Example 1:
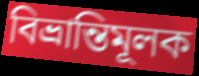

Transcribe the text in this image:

বিভ্রান্তিমূলক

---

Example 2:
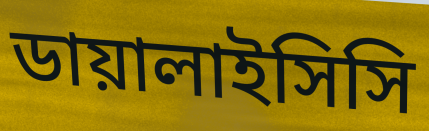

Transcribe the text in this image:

ডায়ালাইসিসি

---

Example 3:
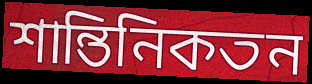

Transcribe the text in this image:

শান্তিনিকতন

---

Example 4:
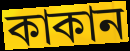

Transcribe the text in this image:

কাকান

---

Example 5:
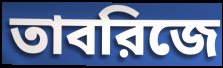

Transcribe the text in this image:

তাবরিজে